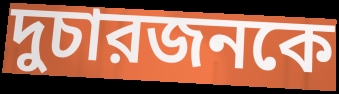
দুচারজনকে